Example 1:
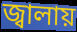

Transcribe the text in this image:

জ্বালায়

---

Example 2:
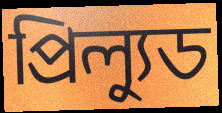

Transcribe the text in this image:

প্রিল্যুড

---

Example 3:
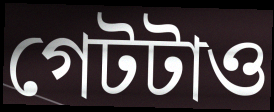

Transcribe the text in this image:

গেটটাও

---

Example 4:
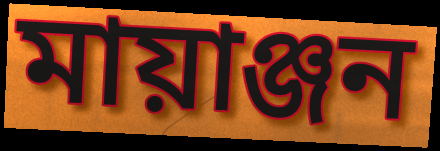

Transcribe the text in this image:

মায়াঞ্জন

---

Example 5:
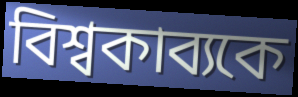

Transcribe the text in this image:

বিশ্বকাব্যকে